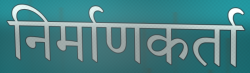
निर्माणकर्ता